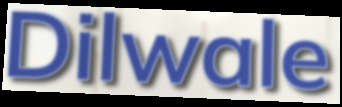
Dilwale